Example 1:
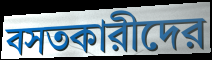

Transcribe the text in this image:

বসতকারীদের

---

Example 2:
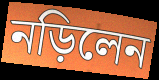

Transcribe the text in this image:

নড়িলেন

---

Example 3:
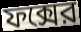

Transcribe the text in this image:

ফক্সের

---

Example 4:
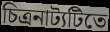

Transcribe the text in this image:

চিত্রনাট্যটিতে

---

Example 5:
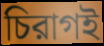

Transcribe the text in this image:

চিরাগই